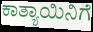
ಕಾತ್ಯಾಯಿನಿಗೆ